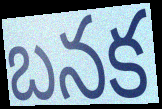
బనక